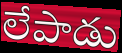
లేపాడు